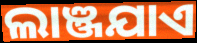
ଲାଞ୍ଜଯାଏ